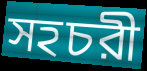
সহচরী